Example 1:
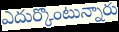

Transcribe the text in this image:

ఎదుర్కొంటున్నారు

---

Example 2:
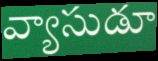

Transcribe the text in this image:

వ్యాసుడూ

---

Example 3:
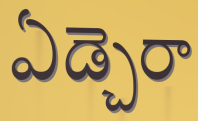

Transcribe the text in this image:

ఏడ్చెరా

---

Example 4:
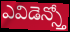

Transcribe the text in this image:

ఎవిడెన్స్తో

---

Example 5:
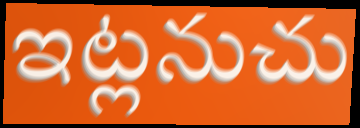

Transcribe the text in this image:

ఇట్లనుచు